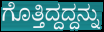
ಗೊತ್ತಿದ್ದದ್ದನ್ನು